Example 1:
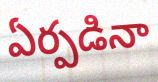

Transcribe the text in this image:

ఏర్పడినా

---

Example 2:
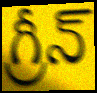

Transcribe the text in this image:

గ్రీన్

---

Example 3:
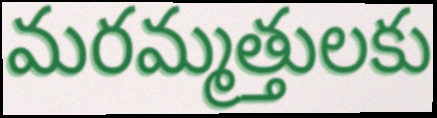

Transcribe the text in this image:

మరమ్మత్తులకు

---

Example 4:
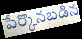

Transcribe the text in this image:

పేర్కొనబడిన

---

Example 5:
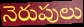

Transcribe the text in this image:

నెరుపులు